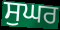
ਸੁਘਰ